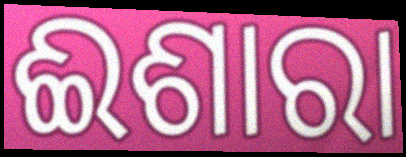
ଈଶାରା